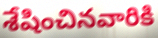
శేషించినవారికి